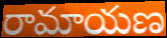
రామాయణ